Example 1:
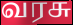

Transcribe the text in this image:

வரசு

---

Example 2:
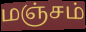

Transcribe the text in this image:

மஞ்சம்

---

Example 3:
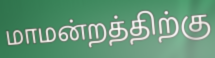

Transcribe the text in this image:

மாமன்றத்திற்கு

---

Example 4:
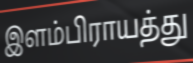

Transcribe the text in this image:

இளம்பிராயத்து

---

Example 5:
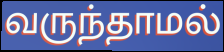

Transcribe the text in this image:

வருந்தாமல்